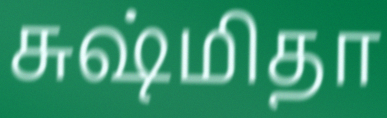
சுஷ்மிதா